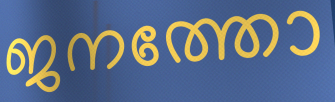
ജനത്തോ